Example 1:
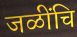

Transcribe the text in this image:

जळींचि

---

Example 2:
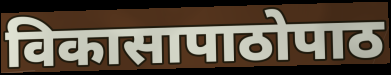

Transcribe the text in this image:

विकासापाठोपाठ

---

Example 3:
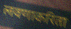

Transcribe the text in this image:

लवणाकरिता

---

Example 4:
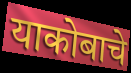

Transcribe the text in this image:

याकोबाचे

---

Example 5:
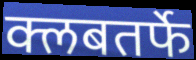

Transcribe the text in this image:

क्लबतर्फे